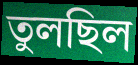
তুলছিল